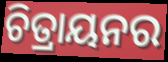
ଚିତ୍ରାୟନର